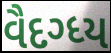
વૈદગ્ધ્ય